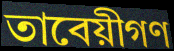
তাবেয়ীগণ